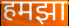
हमझा